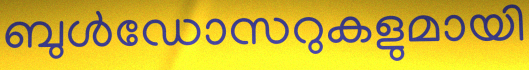
ബുൾഡോസറുകളുമായി